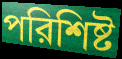
পরিশিষ্ট